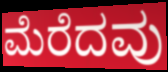
ಮೆರೆದವು